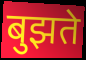
बुझते